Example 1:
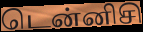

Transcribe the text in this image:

டென்னிசி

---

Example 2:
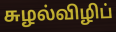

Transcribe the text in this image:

சுழல்விழிப்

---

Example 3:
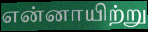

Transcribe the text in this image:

என்னாயிற்று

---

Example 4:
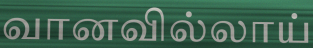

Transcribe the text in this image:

வானவில்லாய்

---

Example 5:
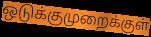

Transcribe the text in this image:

ஒடுக்குமுறைக்குள்